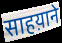
साहय़ाने